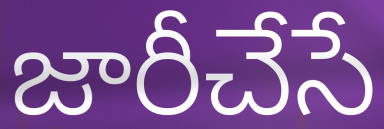
జారీచేసే